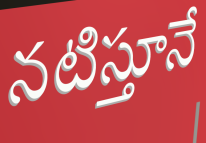
నటిస్తూనే